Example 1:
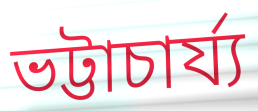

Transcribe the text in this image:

ভট্টাচার্য্য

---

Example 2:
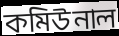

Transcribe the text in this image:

কমিউনাল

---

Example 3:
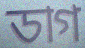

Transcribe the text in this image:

ডাগ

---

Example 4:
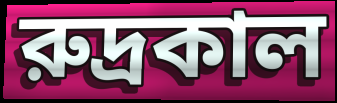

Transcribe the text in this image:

রুদ্রকাল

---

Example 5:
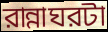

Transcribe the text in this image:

রান্নাঘরটা